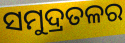
ସମୁଦ୍ରତଳର